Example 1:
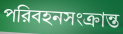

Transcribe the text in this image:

পরিবহনসংক্রান্ত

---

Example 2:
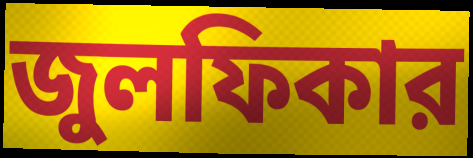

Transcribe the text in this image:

জুলফিকার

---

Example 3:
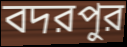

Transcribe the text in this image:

বদরপুর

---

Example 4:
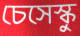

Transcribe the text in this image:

চেসেস্কু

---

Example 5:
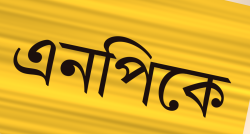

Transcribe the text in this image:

এনপিকে